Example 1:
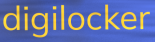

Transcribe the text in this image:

digilocker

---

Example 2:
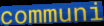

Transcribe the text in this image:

communi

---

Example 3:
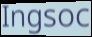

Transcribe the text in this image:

Ingsoc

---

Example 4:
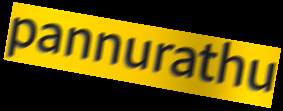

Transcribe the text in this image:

pannurathu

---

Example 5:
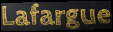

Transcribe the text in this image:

Lafargue